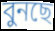
বুনছে